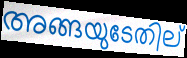
അങ്ങയുടേതില്